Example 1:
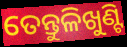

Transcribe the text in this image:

ତେନ୍ତୁଳିଖୁଣ୍ଟି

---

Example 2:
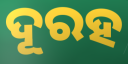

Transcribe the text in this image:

ଦୂରହ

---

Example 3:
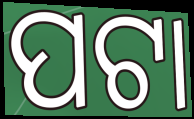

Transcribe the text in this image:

ପଟା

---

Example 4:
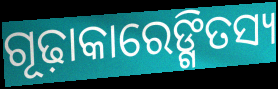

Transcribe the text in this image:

ଗୂଢ଼ାକାରେଙ୍ଗିତସ୍ୟ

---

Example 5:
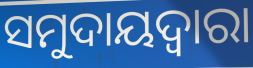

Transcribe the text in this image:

ସମୁଦାୟଦ୍ୱାରା